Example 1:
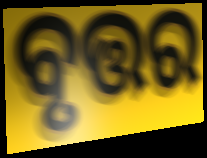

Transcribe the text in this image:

ବୃତ୍ତର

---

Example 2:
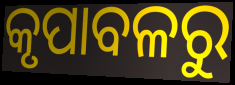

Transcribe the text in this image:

କୃପାବଳରୁ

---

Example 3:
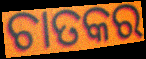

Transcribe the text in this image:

ଚାତକର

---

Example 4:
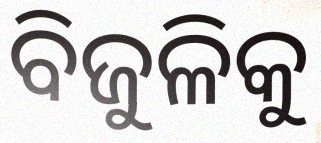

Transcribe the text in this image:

ବିଜୁଳିକୁ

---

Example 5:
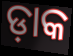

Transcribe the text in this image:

ଡ଼ାକ